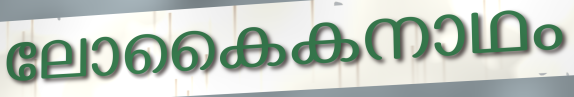
ലോകൈകനാഥം